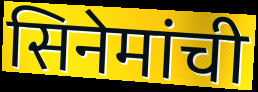
सिनेमांची